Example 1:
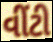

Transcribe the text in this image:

વીંટી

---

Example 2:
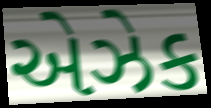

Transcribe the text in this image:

એઝેક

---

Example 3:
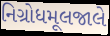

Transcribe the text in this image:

નિગ્રોધમૂલજાલે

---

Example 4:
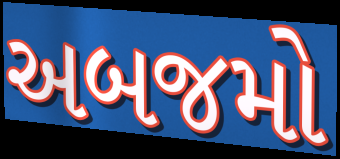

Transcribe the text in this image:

અબજમો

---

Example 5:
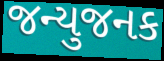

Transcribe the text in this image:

જન્યુજનક